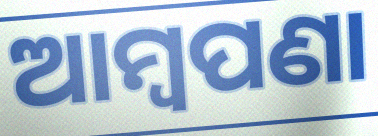
ଆମ୍ବପଣା